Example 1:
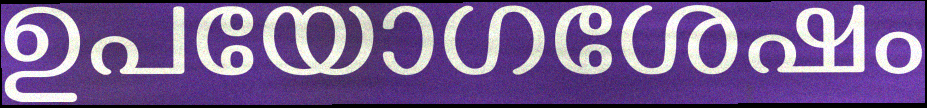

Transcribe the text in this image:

ഉപയോഗശേഷം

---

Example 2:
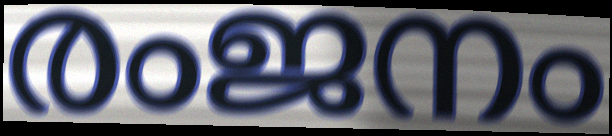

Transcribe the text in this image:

രംജനം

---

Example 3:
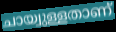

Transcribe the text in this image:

ചായ്വുള്ളതാണ്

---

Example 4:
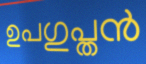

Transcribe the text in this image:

ഉപഗുപ്തൻ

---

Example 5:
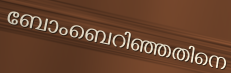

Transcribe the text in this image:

ബോംബെറിഞ്ഞതിനെ